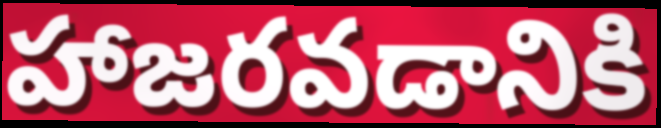
హాజరవడానికి